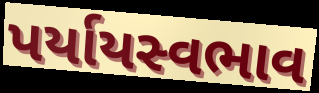
પર્યાયસ્વભાવ